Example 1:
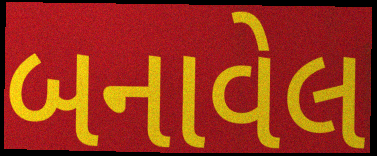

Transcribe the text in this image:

બનાવેલ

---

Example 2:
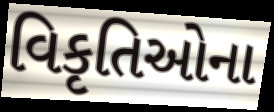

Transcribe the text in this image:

વિકૃતિઓના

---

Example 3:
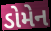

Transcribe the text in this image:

ડોમેન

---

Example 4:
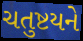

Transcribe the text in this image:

ચતુષ્ટયને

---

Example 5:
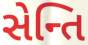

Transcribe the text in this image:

સેન્તિ